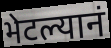
भेटल्यानं